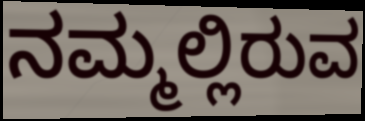
ನಮ್ಮಲ್ಲಿರುವ